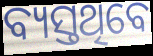
ବ୍ୟସ୍ତଥିବେ